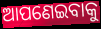
ଆପଣେଇବାକୁ